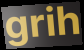
grih